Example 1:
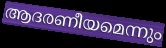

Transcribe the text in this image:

ആദരണീയമെന്നും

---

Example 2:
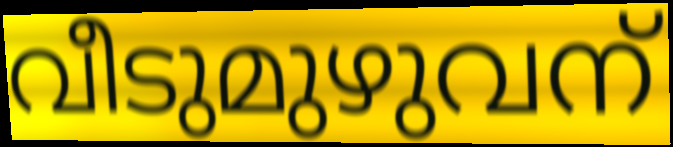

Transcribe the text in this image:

വീടുമുഴുവന്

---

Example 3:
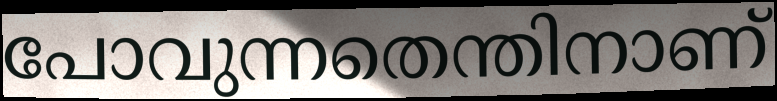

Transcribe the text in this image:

പോവുന്നതെന്തിനാണ്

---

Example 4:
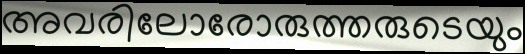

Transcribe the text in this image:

അവരിലോരോരുത്തരുടെയും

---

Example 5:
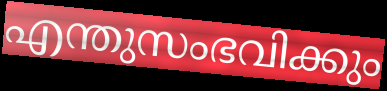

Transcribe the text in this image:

എന്തുസംഭവിക്കും